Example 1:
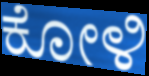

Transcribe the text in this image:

ಕೋಳಿ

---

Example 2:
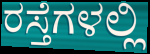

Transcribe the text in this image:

ರಸ್ತೆಗಳಲ್ಲಿ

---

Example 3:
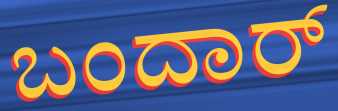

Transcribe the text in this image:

ಬಂದಾರ್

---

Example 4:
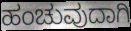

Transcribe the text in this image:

ಹಂಚುವುದಾಗಿ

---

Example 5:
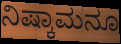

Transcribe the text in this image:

ನಿಷ್ಕಾಮನೂ